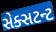
સેક્સટન્ટ